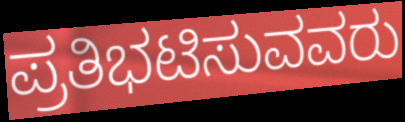
ಪ್ರತಿಭಟಿಸುವವರು